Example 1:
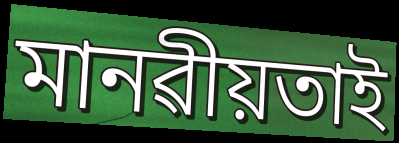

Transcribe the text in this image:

মানৱীয়তাই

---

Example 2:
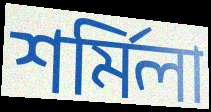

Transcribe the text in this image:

শৰ্মিলা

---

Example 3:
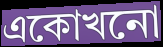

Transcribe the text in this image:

একোখনো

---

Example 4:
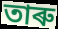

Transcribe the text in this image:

তাৰু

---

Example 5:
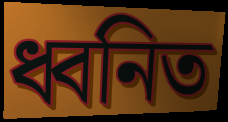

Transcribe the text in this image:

ধ্বনিত